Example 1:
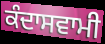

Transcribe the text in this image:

ਕੰਦਾਸਵਾਮੀ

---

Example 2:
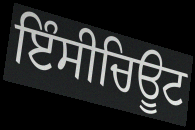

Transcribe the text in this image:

ਇੰਸੀਚਿਊਟ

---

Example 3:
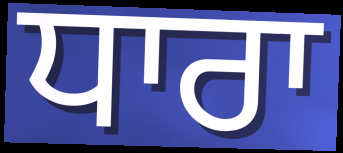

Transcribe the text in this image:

ਧਾਰਾ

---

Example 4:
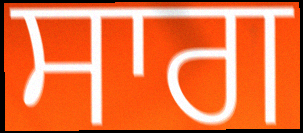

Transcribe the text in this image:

ਸਾਗ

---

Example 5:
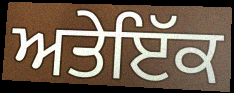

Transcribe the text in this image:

ਅਤੇਇੱਕ